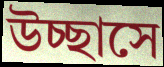
উচ্ছাসে